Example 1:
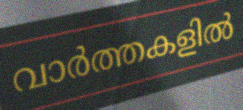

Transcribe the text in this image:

വാർത്തകളിൽ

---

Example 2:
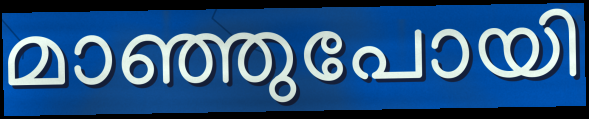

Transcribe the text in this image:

മാഞ്ഞുപോയി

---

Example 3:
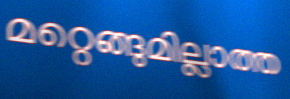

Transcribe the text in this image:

മറ്റെങ്ങുമില്ലാത്ത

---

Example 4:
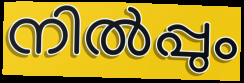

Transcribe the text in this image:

നിൽപ്പും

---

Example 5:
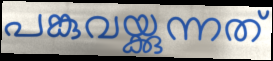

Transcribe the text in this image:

പങ്കുവയ്ക്കുന്നത്